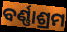
ବର୍ଣ୍ଣାଶ୍ରମ